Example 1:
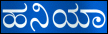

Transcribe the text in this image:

ಹನಿಯಾ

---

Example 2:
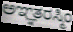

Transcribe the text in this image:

ಅಞ್ಞತರಸ್ಮಿಂ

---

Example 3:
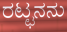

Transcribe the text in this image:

ರಟ್ಟನನು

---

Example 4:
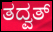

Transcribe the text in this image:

ತದ್ವತ್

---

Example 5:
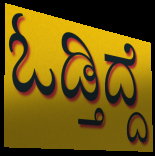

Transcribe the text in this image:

ಓಡ್ತಿದ್ದೆ